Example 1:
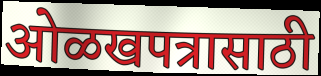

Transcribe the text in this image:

ओळखपत्रासाठी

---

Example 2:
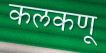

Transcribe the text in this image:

कलकणू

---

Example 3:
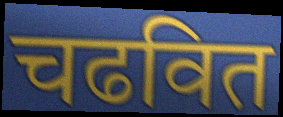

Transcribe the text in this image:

चढवित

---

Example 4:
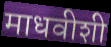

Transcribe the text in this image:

माधवीशी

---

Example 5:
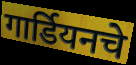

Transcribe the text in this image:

गार्डियनचे